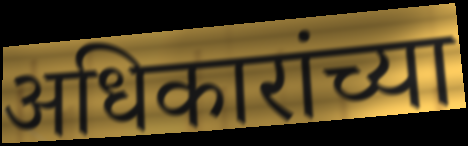
अधिकारांच्या